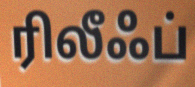
ரிலீஃப்